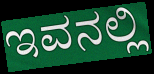
ಇವನಲ್ಲಿ